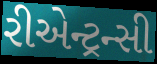
રીએન્ટ્રન્સી